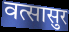
वत्सासुर